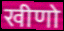
खीणो